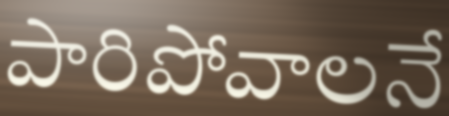
పారిపోవాలనే